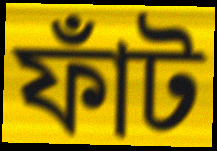
ফাঁট